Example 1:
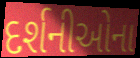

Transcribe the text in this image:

દર્શનીઓના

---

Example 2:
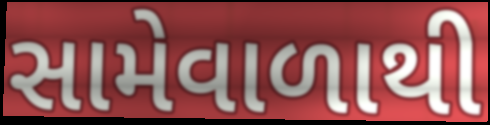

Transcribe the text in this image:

સામેવાળાથી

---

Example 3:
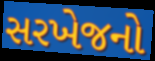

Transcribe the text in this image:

સરખેજનો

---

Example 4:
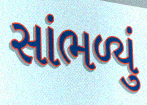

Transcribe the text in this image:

સાંભળ્યું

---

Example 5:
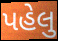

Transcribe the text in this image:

પહેલુ